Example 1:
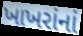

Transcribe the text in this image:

ખાખરાંનાં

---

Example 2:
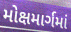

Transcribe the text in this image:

મોક્ષમાર્ગમાં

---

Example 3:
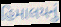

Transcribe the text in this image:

હિમાલયનું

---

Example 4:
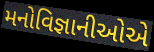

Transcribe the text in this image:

મનોવિજ્ઞાનીઓએ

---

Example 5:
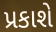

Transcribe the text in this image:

પ્રકાશે